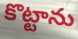
కొట్టాను